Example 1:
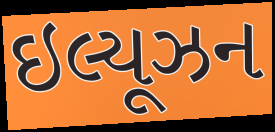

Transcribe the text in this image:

ઇલ્યૂઝન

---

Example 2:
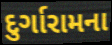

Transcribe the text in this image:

દુર્ગારામના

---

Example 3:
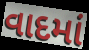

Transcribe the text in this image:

વાદમાં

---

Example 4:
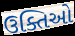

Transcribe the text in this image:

ઉક્તિઓ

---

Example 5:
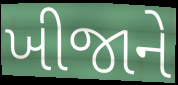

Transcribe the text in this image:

ખીજાને